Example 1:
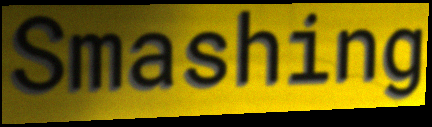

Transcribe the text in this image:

Smashing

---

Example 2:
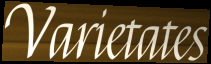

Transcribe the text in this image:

Varietates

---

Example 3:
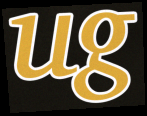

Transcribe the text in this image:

ug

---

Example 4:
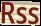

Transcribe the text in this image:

Rss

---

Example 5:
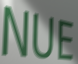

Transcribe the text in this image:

NUE